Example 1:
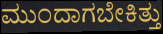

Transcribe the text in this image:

ಮುಂದಾಗಬೇಕಿತ್ತು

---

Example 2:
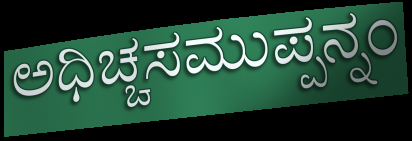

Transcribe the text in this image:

ಅಧಿಚ್ಚಸಮುಪ್ಪನ್ನಂ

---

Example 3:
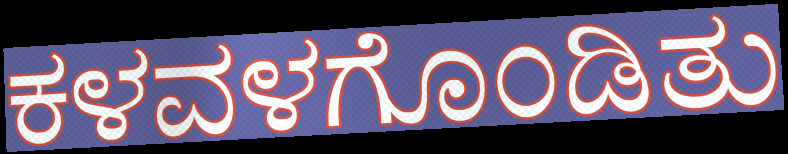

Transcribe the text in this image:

ಕಳವಳಗೊಂಡಿತು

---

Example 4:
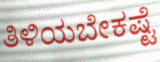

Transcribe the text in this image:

ತಿಳಿಯಬೇಕಷ್ಟೆ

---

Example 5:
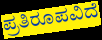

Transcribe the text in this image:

ಪ್ರತಿರೂಪವಿದೆ